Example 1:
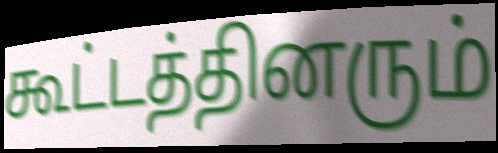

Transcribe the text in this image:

கூட்டத்தினரும்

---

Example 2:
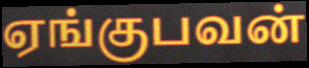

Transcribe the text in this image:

ஏங்குபவன்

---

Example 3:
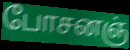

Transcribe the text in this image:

போசனஞ்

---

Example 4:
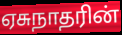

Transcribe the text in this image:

ஏசுநாதரின்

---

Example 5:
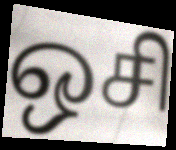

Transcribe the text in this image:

ஒசி